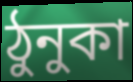
ঠুনুকা